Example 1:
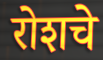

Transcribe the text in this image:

रोशचे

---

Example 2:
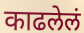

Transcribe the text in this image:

काढलेलं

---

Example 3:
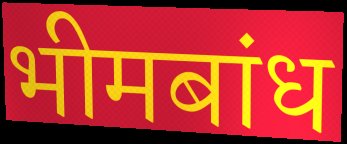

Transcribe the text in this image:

भीमबांध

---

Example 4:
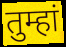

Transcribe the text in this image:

तुम्हां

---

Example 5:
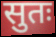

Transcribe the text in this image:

सुतः